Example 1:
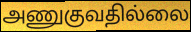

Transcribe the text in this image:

அணுகுவதில்லை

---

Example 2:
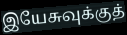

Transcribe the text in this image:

இயேசுவுக்குத்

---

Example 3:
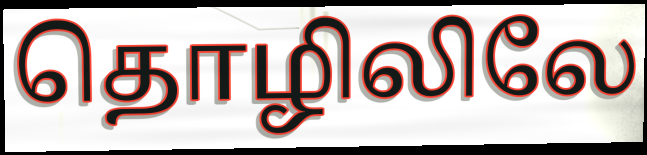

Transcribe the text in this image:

தொழிலிலே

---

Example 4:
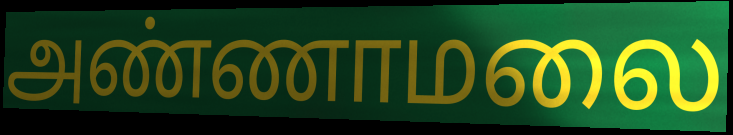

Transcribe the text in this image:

அண்ணாமலை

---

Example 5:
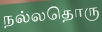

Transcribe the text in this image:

நல்லதொரு